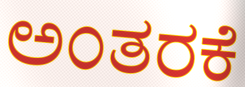
ಅಂತರಕೆ